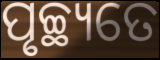
ପୃଚ୍ଛ୍ୟତେ